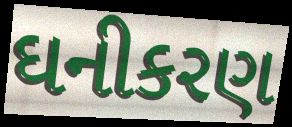
ઘનીકરણ